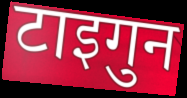
टाइगुन